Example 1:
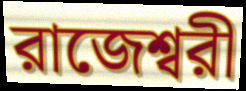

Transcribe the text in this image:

রাজেশ্বরী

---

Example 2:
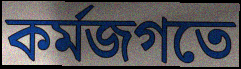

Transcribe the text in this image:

কর্মজগতে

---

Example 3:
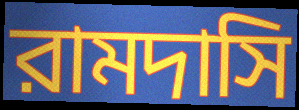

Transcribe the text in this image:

রামদাসি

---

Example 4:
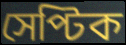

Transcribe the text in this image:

সেপ্টিক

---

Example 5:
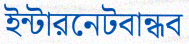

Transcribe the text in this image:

ইন্টারনেটবান্ধব